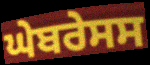
ਘੇਬਰੇਸਸ